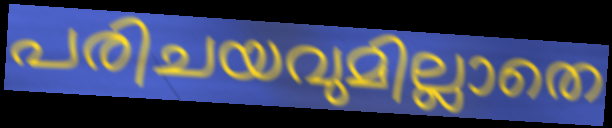
പരിചയവുമില്ലാതെ